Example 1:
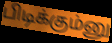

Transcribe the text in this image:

பிடிக்கும்னு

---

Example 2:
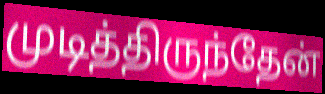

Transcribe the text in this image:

முடித்திருந்தேன்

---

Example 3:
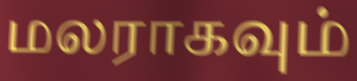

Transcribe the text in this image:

மலராகவும்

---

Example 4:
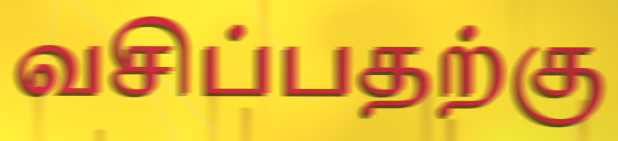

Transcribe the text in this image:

வசிப்பதற்கு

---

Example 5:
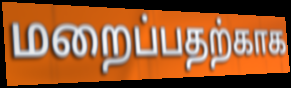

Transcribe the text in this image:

மறைப்பதற்காக